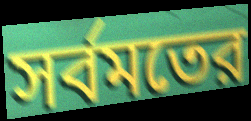
সর্বমতের